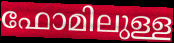
ഫോമിലുള്ള